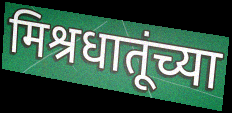
मिश्रधातूंच्या